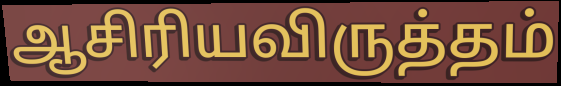
ஆசிரியவிருத்தம்